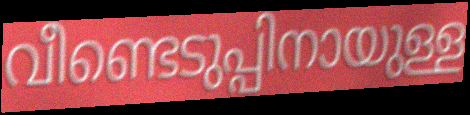
വീണ്ടെടുപ്പിനായുള്ള